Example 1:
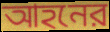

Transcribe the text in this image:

আহনের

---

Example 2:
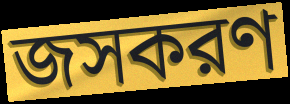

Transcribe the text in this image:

জসকরণ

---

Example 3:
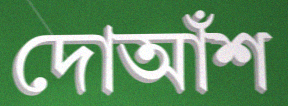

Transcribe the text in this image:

দোআঁশ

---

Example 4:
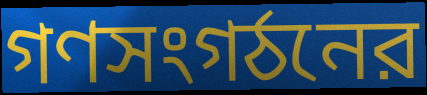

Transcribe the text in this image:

গণসংগঠনের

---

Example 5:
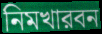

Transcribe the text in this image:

নিমখারবন